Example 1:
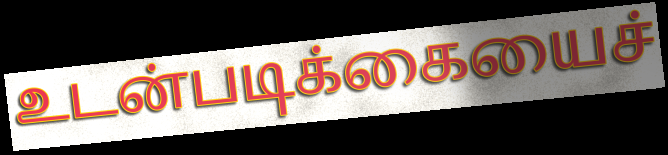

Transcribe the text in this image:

உடன்படிக்கையைச்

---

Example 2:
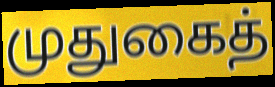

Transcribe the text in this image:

முதுகைத்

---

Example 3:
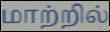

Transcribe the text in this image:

மாற்றில்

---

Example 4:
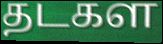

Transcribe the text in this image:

தடகள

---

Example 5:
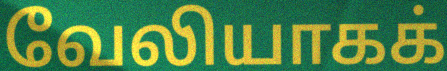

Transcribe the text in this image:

வேலியாகக்